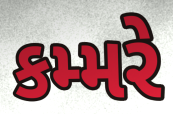
કમ્મરે